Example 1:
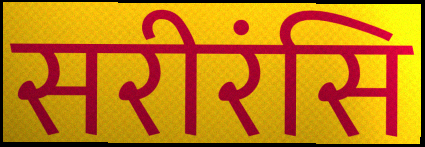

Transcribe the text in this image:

सरीरंसि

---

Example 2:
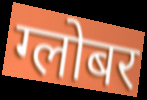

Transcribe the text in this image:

ग्लोबर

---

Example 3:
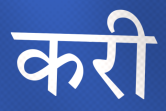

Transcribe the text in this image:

करी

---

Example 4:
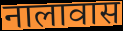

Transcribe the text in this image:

नालावास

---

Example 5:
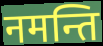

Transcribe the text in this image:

नमन्ति